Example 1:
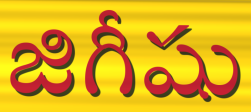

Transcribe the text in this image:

జిగీషు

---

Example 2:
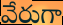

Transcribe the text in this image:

వేరుగా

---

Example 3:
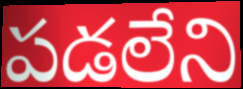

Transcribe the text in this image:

పడలేని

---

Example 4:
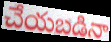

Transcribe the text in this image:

చేయబడినా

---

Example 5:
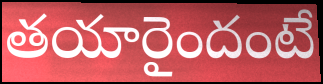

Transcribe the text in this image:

తయారైందంటే